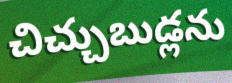
చిచ్చుబుడ్లను